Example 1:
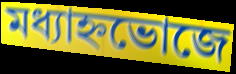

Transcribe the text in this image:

মধ্যাহ্নভোজে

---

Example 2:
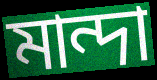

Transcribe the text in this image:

মান্দা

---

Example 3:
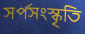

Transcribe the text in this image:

সর্পসংস্কৃতি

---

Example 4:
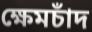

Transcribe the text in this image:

ক্ষেমচাঁদ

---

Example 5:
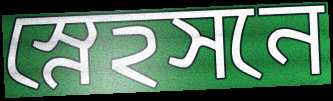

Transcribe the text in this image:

স্নেহসনে